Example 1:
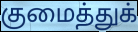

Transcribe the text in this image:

குமைத்துக்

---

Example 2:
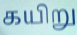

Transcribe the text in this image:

கயிறு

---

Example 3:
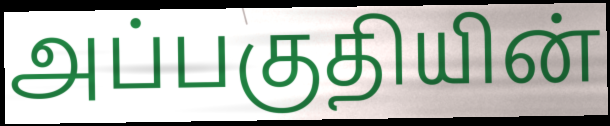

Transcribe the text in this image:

அப்பகுதியின்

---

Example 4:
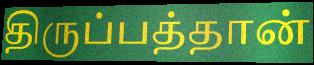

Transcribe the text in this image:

திருப்பத்தான்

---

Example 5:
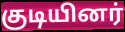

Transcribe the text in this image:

குடியினர்